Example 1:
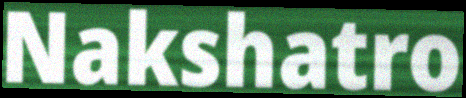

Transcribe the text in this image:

Nakshatro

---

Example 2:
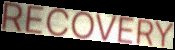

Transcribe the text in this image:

RECOVERY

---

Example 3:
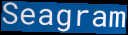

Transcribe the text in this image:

Seagram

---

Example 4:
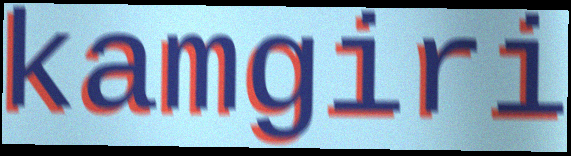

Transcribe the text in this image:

kamgiri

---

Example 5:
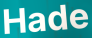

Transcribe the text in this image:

Hade